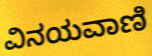
ವಿನಯವಾಣಿ